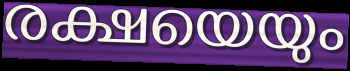
രക്ഷയെയും